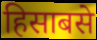
हिसाबसे